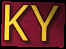
KY